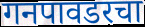
गनपावडरचा